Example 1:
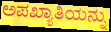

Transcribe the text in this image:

ಅಪಖ್ಯಾತಿಯನ್ನು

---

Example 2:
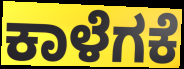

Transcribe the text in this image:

ಕಾಳೆಗಕೆ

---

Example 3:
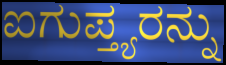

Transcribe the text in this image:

ಐಗುಪ್ತ್ಯರನ್ನು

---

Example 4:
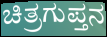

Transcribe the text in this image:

ಚಿತ್ರಗುಪ್ತನ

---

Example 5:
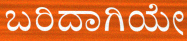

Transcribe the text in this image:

ಬರಿದಾಗಿಯೇ